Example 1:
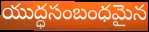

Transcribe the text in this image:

యుద్ధసంబంధమైన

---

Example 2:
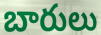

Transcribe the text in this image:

బారులు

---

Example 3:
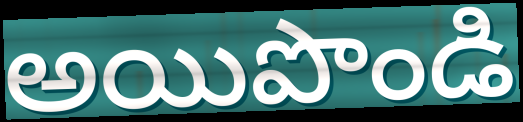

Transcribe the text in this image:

అయిపొండి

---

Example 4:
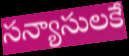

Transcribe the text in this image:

సన్యాసులకే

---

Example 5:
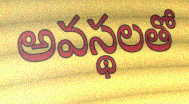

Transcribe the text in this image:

అవస్థలతో